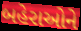
બહેરાઓને